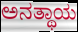
ಅನತ್ಥಾಯ